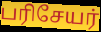
பரிசேயர்